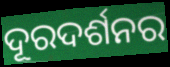
ଦୂରଦର୍ଶନର